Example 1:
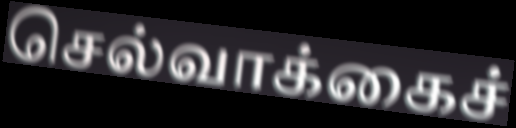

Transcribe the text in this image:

செல்வாக்கைச்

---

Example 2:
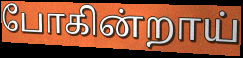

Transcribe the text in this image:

போகின்றாய்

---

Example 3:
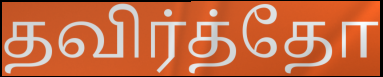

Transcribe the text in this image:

தவிர்த்தோ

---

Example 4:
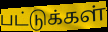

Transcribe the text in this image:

பட்டுக்கள்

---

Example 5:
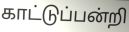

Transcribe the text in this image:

காட்டுப்பன்றி